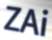
ZAi